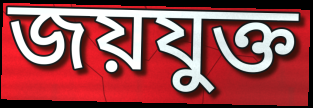
জয়যুক্ত